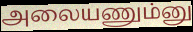
அலையணும்னு